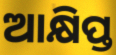
ଆକ୍ଷିପ୍ତ